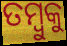
ତମ୍ବୁକୁ